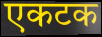
एकटक